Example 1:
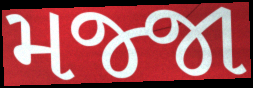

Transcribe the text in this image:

મજ્જા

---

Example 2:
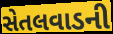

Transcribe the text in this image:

સેતલવાડની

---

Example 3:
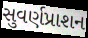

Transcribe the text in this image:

સુવર્ણપ્રાશન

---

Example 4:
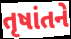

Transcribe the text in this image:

તૃષાંતને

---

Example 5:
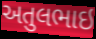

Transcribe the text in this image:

અતુલભાઇ